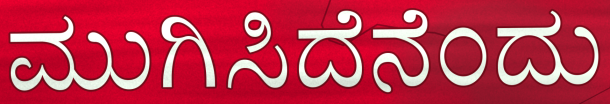
ಮುಗಿಸಿದೆನೆಂದು